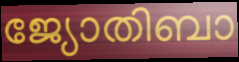
ജ്യോതിബാ